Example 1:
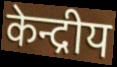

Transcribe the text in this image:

केन्‍द्रीय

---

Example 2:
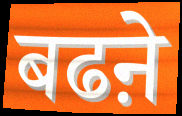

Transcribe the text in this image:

बढऩे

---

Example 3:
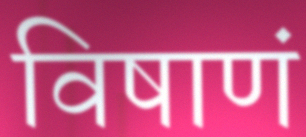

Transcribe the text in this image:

विषाणं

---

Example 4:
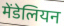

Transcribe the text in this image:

मेंडेलियन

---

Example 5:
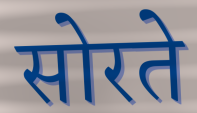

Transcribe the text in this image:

सोरते